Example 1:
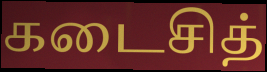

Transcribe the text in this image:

கடைசித்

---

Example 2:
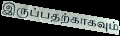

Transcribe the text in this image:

இருப்பதற்காகவும்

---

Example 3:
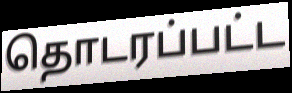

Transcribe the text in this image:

தொடரப்பட்ட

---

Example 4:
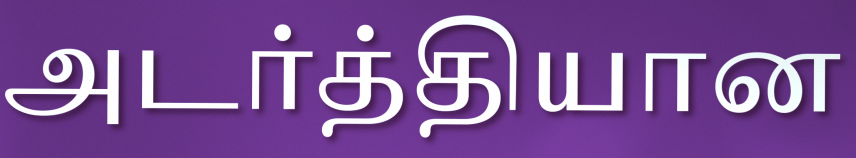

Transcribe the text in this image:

அடர்த்தியான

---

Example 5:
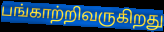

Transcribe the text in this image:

பங்காற்றிவருகிறது